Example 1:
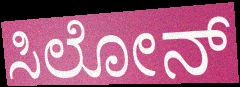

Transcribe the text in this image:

ಸಿಲೋನ್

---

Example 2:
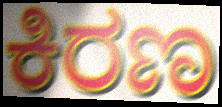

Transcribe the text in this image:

ಕಿರಣ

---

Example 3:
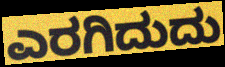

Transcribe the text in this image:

ಎರಗಿದುದು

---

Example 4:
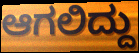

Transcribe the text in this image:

ಆಗಲಿದ್ದು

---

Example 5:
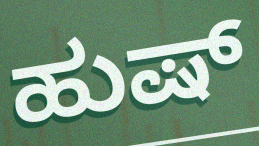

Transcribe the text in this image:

ಹುಷ್